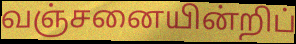
வஞ்சனையின்றிப்